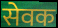
सेवक